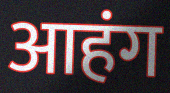
आहंग